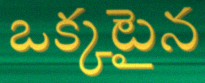
ఒక్కటైన